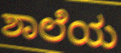
ಶಾಲೆಯ